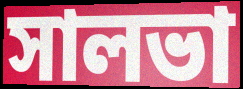
সালভা